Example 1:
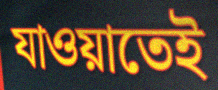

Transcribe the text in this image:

যাওয়াতেই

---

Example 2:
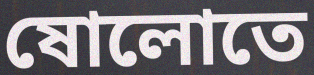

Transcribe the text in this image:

ষোলোতে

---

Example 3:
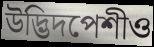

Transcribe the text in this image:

উদ্ভিদপেশীও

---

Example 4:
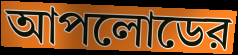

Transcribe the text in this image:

আপলোডের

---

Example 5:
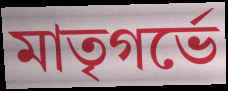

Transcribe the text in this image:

মাতৃগর্ভে